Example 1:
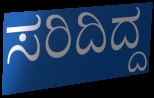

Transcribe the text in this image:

ಸರಿದಿದ್ದ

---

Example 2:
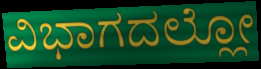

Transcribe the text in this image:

ವಿಭಾಗದಲ್ಲೋ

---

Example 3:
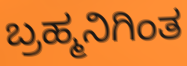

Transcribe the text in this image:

ಬ್ರಹ್ಮನಿಗಿಂತ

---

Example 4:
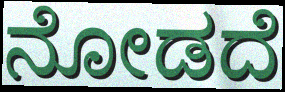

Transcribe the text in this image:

ನೋಡದೆ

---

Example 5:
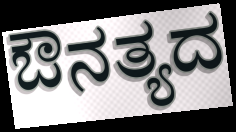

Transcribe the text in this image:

ಔನತ್ಯದ